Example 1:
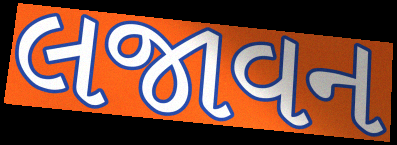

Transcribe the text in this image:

લજાવન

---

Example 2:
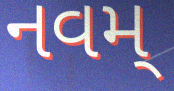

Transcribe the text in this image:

નવમ્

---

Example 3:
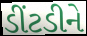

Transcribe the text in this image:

ડીંટડીને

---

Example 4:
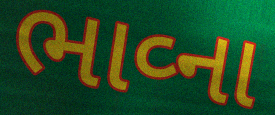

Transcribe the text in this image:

ભાવ્ના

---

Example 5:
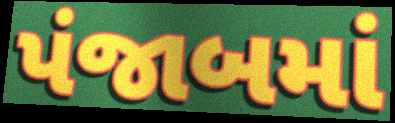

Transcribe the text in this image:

પંજાબમાં